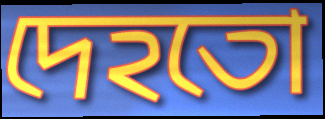
দেহতো